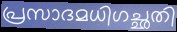
പ്രസാദമധിഗച്ഛതി